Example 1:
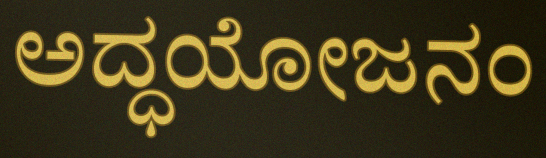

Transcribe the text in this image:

ಅದ್ಧಯೋಜನಂ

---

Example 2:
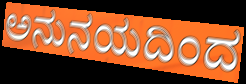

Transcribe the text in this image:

ಅನುನಯದಿಂದ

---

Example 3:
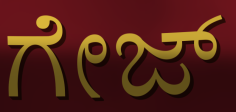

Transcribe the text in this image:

ಗೇಜ್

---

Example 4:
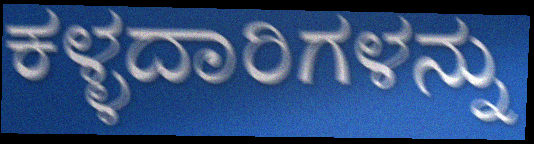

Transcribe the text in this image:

ಕಳ್ಳದಾರಿಗಳನ್ನು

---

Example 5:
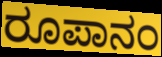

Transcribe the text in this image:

ರೂಪಾನಂ